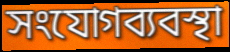
সংযোগব্যবস্থা